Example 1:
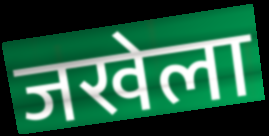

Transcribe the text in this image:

जखेला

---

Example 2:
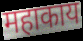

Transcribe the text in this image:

महाकाय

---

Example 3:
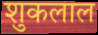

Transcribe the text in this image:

शुकलाल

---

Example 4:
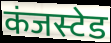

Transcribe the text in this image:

कंजस्टेड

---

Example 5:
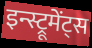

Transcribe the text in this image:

इन्स्ट्रूमेंट्स